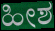
ಹೀಶ